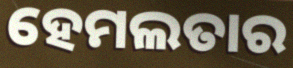
ହେମଲତାର